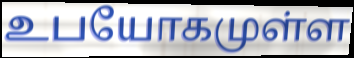
உபயோகமுள்ள